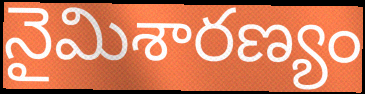
నైమిశారణ్యం